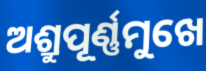
ଅଶ୍ରୁପୂର୍ଣ୍ଣମୁଖେ